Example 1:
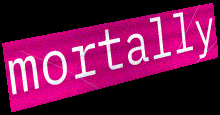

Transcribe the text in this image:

mortally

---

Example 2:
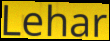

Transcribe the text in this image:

Lehar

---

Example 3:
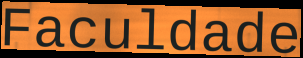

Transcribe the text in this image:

Faculdade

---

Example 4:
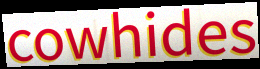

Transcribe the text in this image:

cowhides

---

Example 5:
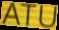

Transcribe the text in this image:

ATU